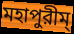
মহাপুরীম্